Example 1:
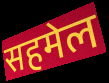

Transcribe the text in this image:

सहमेल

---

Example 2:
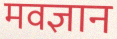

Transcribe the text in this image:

मवज्ञान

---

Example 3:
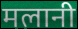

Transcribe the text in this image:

मलानी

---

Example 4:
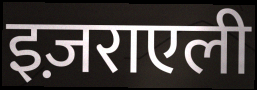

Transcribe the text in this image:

इज़राएली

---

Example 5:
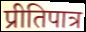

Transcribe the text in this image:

प्रीतिपात्र